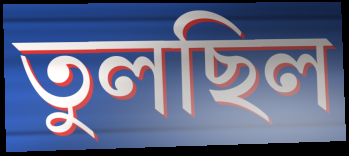
তুলছিল